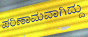
ಪರಿಣಾಮವಾಗಿದ್ದು